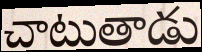
చాటుతాడు